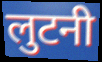
लुटनी